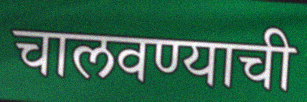
चालवण्याची